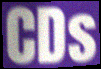
CDs